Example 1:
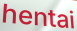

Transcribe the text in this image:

hentai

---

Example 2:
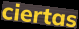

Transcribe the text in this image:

ciertas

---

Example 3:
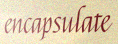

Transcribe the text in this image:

encapsulate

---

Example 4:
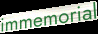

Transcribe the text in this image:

immemorial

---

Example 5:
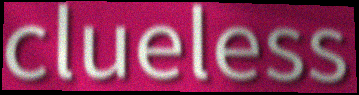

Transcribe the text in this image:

clueless